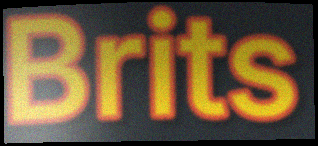
Brits